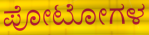
ಪೋಟೋಗಳ